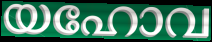
യഹോവ